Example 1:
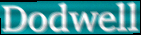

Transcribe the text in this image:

Dodwell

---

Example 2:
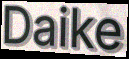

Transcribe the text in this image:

Daike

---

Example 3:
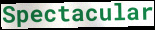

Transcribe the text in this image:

Spectacular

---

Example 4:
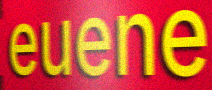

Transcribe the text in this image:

euene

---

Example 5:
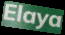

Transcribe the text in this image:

Elaya